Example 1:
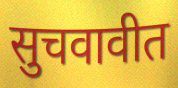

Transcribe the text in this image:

सुचवावीत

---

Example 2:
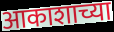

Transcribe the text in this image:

आकाशाच्या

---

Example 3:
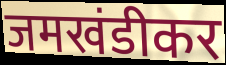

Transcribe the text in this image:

जमखंडीकर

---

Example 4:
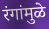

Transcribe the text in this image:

रंगांमुळे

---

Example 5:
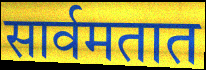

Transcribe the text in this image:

सार्वमतात